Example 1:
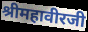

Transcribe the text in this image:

श्रीमहावीरजी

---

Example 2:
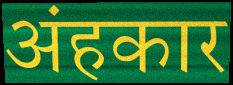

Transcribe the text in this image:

अंहकार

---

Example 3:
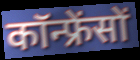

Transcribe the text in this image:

कॉन्फ्रेंसों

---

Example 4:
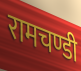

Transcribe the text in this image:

रामचण्डी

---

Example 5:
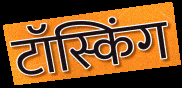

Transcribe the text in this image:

टॉस्किंग